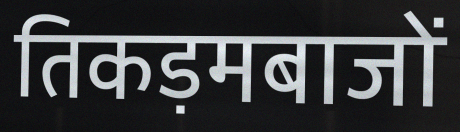
तिकड़मबाजों